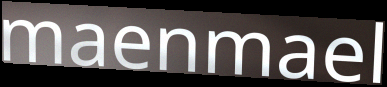
maenmael